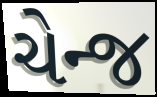
ચેન્જ